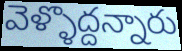
వెళ్ళొద్దన్నారు